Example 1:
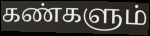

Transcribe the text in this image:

கண்களும்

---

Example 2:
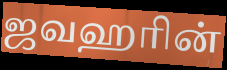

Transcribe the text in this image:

ஜவஹரின்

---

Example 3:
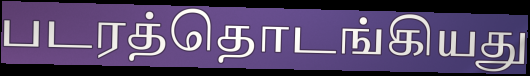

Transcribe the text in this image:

படரத்தொடங்கியது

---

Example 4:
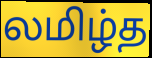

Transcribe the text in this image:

லமிழ்த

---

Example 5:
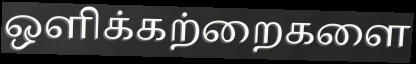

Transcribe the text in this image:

ஒளிக்கற்றைகளை